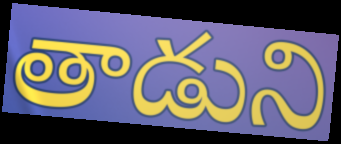
తాడుని